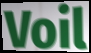
Voil